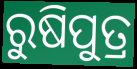
ରୁଷିପୁତ୍ର